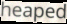
heaped